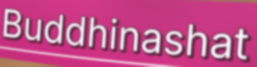
Buddhinashat